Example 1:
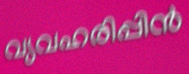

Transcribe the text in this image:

വ്യവഹരിപ്പിൻ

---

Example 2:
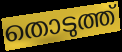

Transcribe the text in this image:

തൊടുത്ത്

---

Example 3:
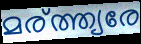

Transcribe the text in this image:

മര്ത്ത്യരേ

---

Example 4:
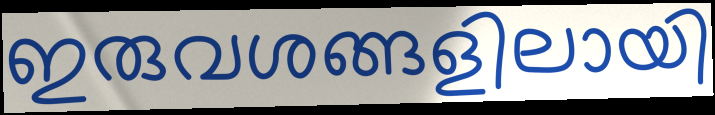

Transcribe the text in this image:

ഇരുവശങ്ങളിലായി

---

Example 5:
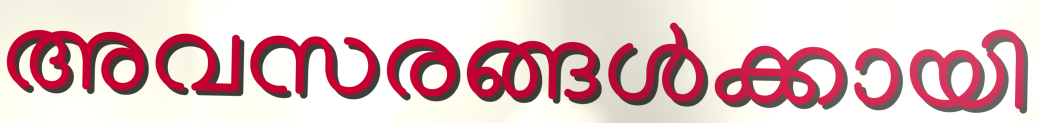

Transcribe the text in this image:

അവസരങ്ങൾക്കായി